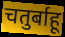
चतुर्बाहू